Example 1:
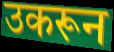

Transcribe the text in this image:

उकरून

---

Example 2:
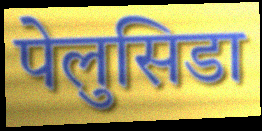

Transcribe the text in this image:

पेलुसिडा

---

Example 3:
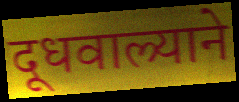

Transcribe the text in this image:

दूधवाल्याने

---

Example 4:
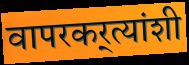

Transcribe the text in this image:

वापरकर्त्यांशी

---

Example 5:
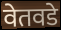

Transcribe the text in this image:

वेतवडे